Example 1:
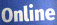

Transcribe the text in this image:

Online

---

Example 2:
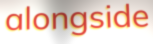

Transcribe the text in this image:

alongside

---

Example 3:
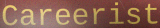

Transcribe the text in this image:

Careerist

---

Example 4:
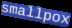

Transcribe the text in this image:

smallpox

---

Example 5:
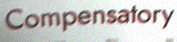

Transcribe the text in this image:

Compensatory